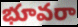
భూవరా